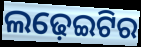
ଲଢ଼େଇଟିର